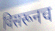
विसरूनच